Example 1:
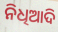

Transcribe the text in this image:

ନିଧିଆଦି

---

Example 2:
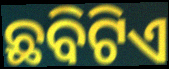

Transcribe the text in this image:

ଛବିଟିଏ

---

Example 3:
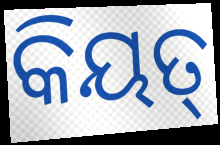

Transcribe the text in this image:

କିୟତ୍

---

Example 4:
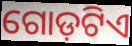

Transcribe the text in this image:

ଗୋଡ଼ଟିଏ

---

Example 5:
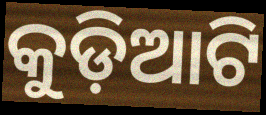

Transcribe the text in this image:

କୁଡ଼ିଆଟି